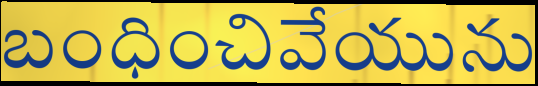
బంధించివేయును